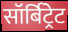
सॉर्बिट्रेट